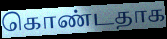
கொண்டதாக